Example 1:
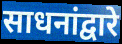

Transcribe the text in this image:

साधनांद्वारे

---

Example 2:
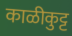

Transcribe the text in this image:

काळीकुट्ट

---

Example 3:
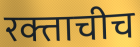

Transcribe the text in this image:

रक्ताचीच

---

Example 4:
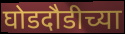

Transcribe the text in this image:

घोडदौडीच्या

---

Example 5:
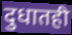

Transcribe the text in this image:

दुधातही